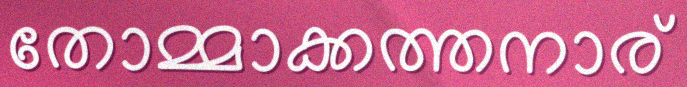
തോമ്മാക്കത്തനാര്